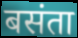
बसंता